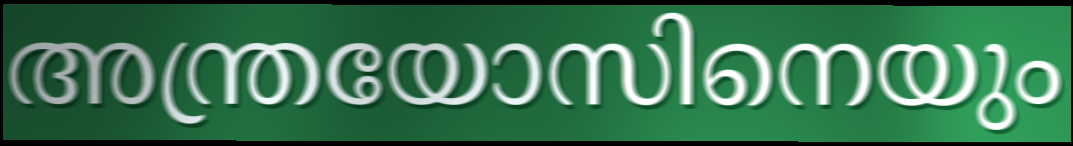
അന്ത്രയോസിനെയും